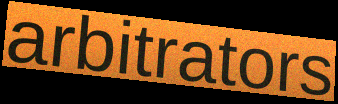
arbitrators